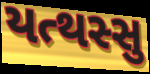
યત્થસ્સુ